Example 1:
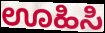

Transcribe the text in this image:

ಊಹಿಸಿ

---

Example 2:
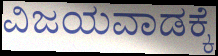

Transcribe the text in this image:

ವಿಜಯವಾಡಕ್ಕೆ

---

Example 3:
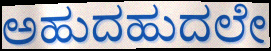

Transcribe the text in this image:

ಅಹುದಹುದಲೇ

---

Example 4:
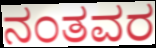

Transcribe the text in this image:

ನಂತವರ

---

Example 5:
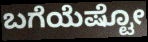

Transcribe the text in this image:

ಬಗೆಯೆಷ್ಟೋ